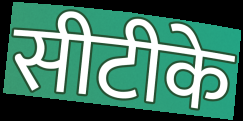
सीटीके